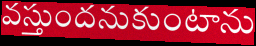
వస్తుందనుకుంటాను